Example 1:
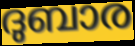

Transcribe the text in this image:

ദുബാര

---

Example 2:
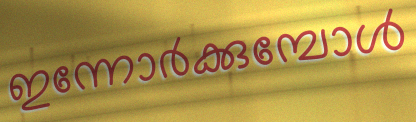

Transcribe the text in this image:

ഇന്നോർക്കുമ്പോൾ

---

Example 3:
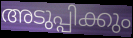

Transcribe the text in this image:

അടുപ്പിക്കും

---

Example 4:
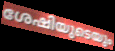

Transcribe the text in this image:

ശേഷിയുടെയും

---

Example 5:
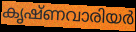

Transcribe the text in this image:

കൃഷ്ണവാരിയർ